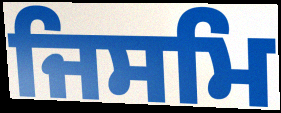
ਜਿਸਮਿ